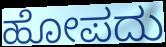
ಹೋಪದು